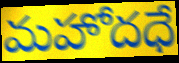
మహోదధే